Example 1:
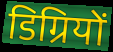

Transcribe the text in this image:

डिग्रियों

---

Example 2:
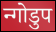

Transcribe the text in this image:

न्गोडुप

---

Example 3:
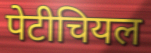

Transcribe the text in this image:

पेटीचियल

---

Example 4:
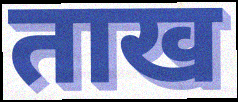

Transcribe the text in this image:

ताख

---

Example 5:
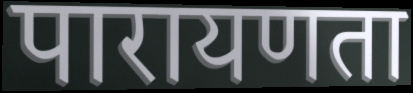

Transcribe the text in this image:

पारायणता